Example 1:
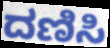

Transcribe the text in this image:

ದಣಿಸಿ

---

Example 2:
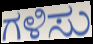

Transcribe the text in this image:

ಗಳಿಸು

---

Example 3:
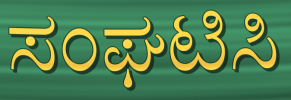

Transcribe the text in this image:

ಸಂಘಟಿಸಿ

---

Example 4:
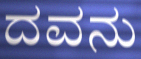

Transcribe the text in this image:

ದವನು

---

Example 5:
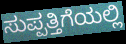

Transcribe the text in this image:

ಸುಪ್ಪತ್ತಿಗೆಯಲ್ಲಿ